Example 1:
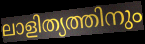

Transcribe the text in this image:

ലാളിത്യത്തിനും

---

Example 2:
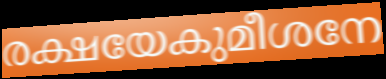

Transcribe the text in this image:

രക്ഷയേകുമീശനേ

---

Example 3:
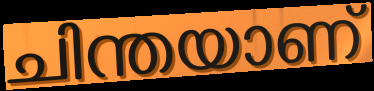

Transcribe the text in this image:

ചിന്തയാണ്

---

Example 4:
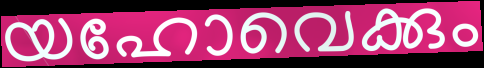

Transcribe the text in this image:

യഹോവെക്കും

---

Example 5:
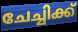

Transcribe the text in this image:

ചേച്ചിക്ക്